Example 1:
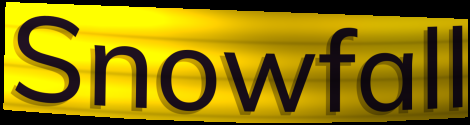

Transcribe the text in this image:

Snowfall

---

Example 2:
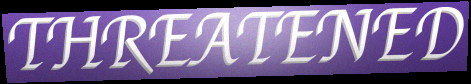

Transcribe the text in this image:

THREATENED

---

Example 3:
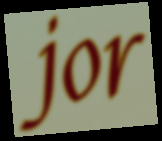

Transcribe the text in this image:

jor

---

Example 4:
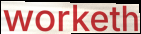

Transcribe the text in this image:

worketh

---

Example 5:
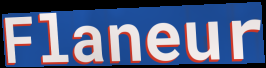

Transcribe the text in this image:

Flaneur